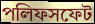
পলিফসফেট